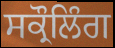
ਸਕ੍ਰੌਲਿੰਗ